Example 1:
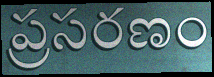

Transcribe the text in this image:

ప్రసరణం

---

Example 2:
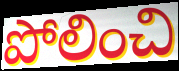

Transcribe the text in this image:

పోలించి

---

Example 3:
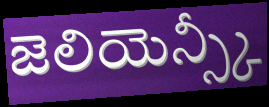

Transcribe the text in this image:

జెలియెన్స్కీ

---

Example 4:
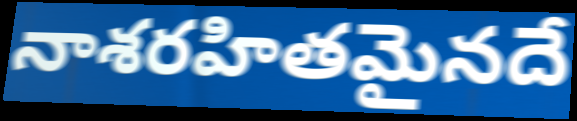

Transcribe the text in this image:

నాశరహితమైనదే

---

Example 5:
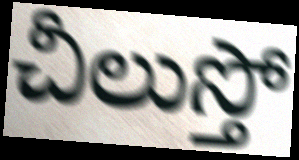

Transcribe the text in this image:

చీలుస్తో